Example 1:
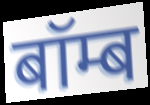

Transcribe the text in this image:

बॉम्ब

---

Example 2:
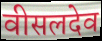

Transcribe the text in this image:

वीसलदेव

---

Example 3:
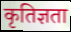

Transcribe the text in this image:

कृतिज्ञता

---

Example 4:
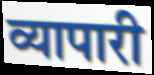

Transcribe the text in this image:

व्‍यापारी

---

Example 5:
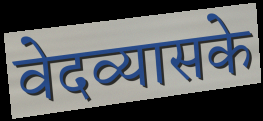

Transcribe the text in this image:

वेदव्यासके